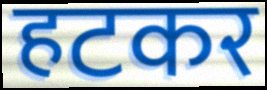
हटकर